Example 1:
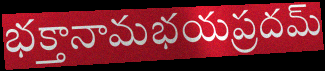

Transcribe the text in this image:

భక్తానామభయప్రదమ్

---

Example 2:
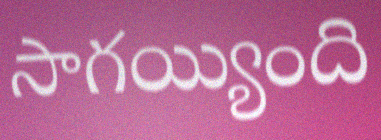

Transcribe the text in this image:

సాగయ్యింది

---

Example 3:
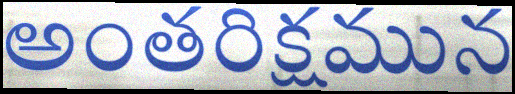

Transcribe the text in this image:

అంతరిక్షమున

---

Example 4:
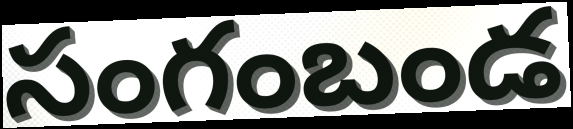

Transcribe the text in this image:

సంగంబండ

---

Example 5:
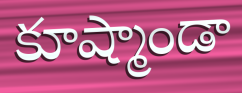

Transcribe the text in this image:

కూష్మాండా